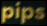
pips